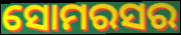
ସୋମରସର